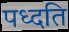
पध्दति